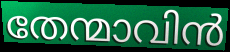
തേന്മാവിൻ